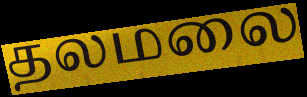
தலமலை